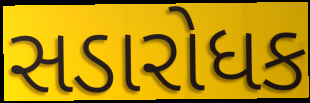
સડારોધક